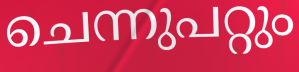
ചെന്നുപറ്റും